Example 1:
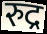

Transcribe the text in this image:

रुद्र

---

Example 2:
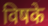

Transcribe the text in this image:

विषके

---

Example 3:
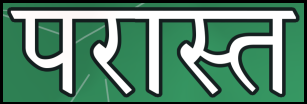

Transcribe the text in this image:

परास्त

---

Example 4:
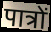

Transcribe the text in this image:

पात्रों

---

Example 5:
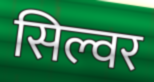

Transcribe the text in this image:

सिल्‍वर